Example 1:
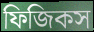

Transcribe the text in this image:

ফিজিকস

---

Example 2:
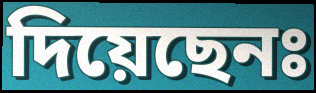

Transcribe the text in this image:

দিয়েছেনঃ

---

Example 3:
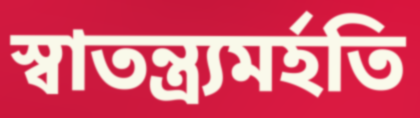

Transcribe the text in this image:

স্বাতন্ত্র্যমর্হতি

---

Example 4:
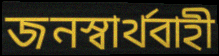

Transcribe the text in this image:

জনস্বার্থবাহী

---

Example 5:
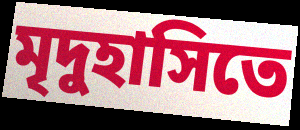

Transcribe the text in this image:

মৃদুহাসিতে